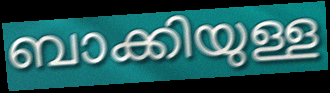
ബാക്കിയുള്ള